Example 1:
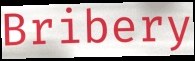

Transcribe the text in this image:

Bribery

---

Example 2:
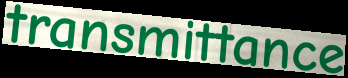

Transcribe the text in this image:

transmittance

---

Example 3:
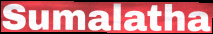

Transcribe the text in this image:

Sumalatha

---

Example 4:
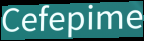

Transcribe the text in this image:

Cefepime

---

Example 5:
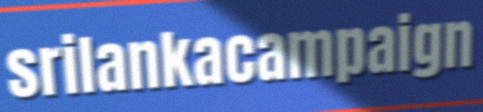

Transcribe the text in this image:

srilankacampaign